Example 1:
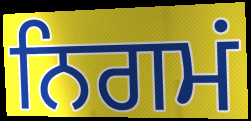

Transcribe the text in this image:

ਨਿਗਮਂ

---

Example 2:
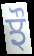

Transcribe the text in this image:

ਝੌ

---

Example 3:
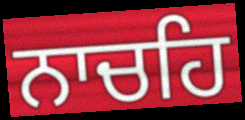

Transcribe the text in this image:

ਨਾਚਹਿ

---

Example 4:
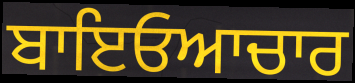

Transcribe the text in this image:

ਬਾਇਓਆਚਾਰ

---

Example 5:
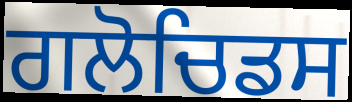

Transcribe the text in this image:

ਗਲੋਚਿਡਸ